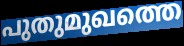
പുതുമുഖത്തെ